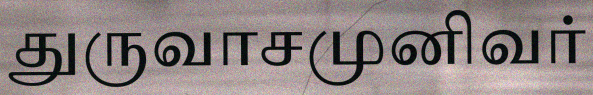
துருவாசமுனிவர்